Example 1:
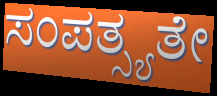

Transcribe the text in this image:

ಸಂಪತ್ಸ್ಯತೇ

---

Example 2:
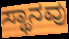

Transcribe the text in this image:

ಸ್ಥಾನವು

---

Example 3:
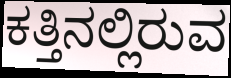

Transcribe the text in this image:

ಕತ್ತಿನಲ್ಲಿರುವ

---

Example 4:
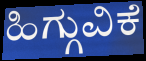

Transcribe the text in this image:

ಹಿಗ್ಗುವಿಕೆ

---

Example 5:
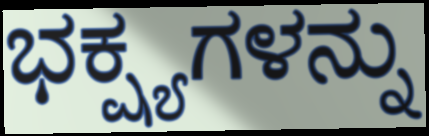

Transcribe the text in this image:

ಭಕ್ಷ್ಯಗಳನ್ನು